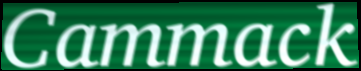
Cammack